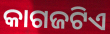
କାଗଜଟିଏ